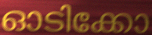
ഓടിക്കോ